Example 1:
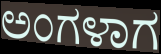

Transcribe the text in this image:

ಅಂಗಳಾಗ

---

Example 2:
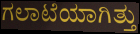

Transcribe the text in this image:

ಗಲಾಟೆಯಾಗಿತ್ತು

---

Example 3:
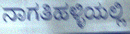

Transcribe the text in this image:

ನಾಗತಿಹಳ್ಳಿಯಲ್ಲಿ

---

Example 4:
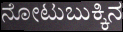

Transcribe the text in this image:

ನೋಟುಬುಕ್ಕಿನ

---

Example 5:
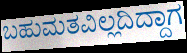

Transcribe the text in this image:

ಬಹುಮತವಿಲ್ಲದಿದ್ದಾಗ